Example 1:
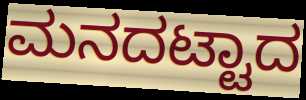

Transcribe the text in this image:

ಮನದಟ್ಟಾದ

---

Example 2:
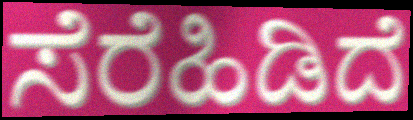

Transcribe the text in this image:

ಸೆರೆಹಿಡಿದೆ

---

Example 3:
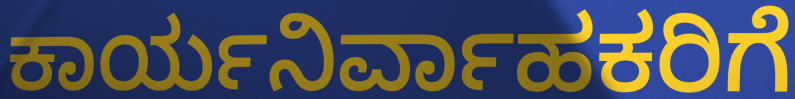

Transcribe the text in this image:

ಕಾರ್ಯನಿರ್ವಾಹಕರಿಗೆ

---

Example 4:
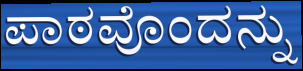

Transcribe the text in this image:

ಪಾಠವೊಂದನ್ನು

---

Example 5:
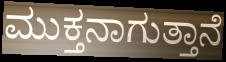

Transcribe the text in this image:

ಮುಕ್ತನಾಗುತ್ತಾನೆ